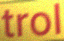
trol